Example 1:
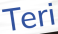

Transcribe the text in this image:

Teri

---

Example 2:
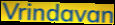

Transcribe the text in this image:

Vrindavan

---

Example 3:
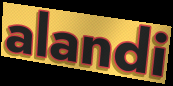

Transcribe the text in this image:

alandi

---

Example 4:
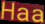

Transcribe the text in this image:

Haa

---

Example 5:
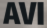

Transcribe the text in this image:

AVI